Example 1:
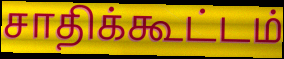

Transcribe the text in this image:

சாதிக்கூட்டம்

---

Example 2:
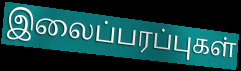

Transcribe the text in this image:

இலைப்பரப்புகள்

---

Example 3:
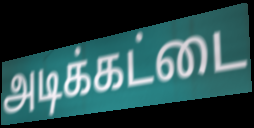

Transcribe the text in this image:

அடிக்கட்டை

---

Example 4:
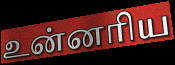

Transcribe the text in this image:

உன்னரிய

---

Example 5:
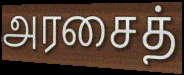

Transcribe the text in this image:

அரசைத்